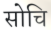
सोचि